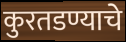
कुरतडण्याचे